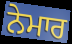
ਨੇਮਾਰ